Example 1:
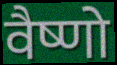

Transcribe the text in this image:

वैष्‍णो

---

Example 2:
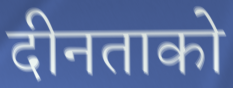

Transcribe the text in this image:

दीनताको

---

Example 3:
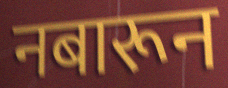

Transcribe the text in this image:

नबारून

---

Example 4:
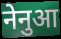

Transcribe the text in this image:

नेनुआ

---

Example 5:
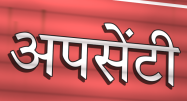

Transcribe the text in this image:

अपसेंटी